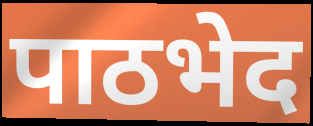
पाठभेद